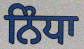
ਨਿੰਧਾ